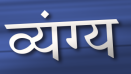
व्यंग्य